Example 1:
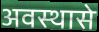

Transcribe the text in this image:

अवस्थासे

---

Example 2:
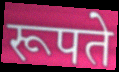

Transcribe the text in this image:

रूपते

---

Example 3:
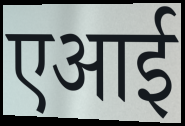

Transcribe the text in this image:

एआई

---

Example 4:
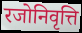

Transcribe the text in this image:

रजोनिवृत्ति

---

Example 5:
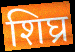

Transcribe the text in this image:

शिघ्र